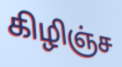
கிழிஞ்ச